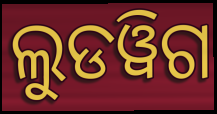
ଲୁଡୱିଗ